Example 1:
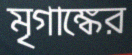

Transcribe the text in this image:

মৃগাঙ্কের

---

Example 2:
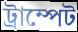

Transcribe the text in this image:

ট্রাম্পেট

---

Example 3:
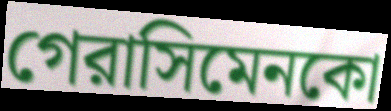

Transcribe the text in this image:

গেরাসিমেনকো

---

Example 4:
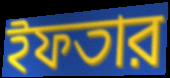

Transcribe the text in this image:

ইফতার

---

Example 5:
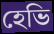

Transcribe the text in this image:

হেভি